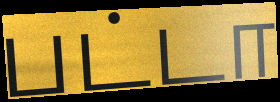
பட்டா